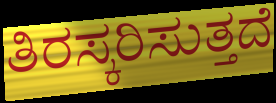
ತಿರಸ್ಕರಿಸುತ್ತದೆ